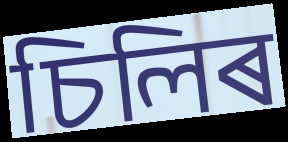
চিলিৰ